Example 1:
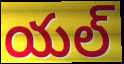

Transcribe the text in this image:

యల్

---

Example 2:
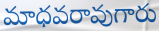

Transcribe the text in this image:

మాధవరావుగారు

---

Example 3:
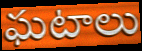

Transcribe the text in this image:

ఘటాలు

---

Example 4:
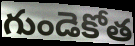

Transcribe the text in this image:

గుండెకోత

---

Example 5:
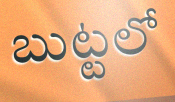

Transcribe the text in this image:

బుట్టలో